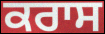
ਕਰਾਸ